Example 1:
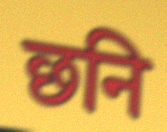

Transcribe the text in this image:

छनि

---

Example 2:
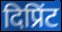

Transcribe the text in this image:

दिप्रिंट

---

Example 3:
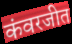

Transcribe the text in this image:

कंवरजीत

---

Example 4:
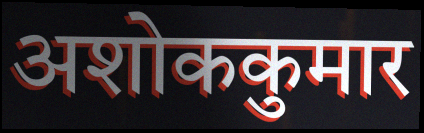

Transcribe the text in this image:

अशोककुमार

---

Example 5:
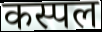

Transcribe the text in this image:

कस्पल